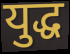
युद्ध